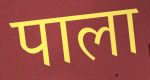
पाला